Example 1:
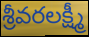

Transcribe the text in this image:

శ్రీవరలక్ష్మీ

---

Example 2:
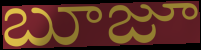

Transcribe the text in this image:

బూజూ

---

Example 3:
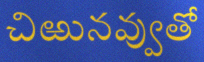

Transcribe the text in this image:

చిఱునవ్వుతో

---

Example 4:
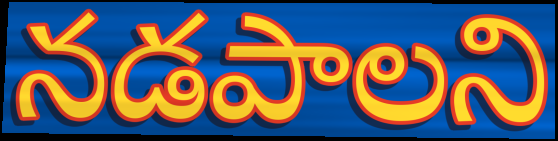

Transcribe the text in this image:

నడపాలని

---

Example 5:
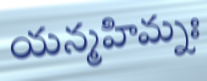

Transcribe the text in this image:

యన్మహిమ్నః